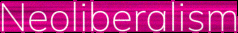
Neoliberalism